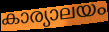
കാര്യാലയം